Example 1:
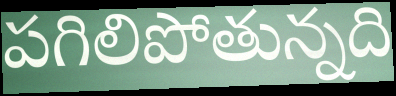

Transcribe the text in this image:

పగిలిపోతున్నది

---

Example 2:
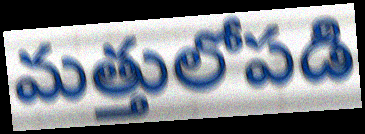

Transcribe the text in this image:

మత్తులోపడి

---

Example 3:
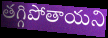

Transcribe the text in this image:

తగ్గిపోతాయని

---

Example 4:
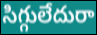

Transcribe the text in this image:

సిగ్గులేదురా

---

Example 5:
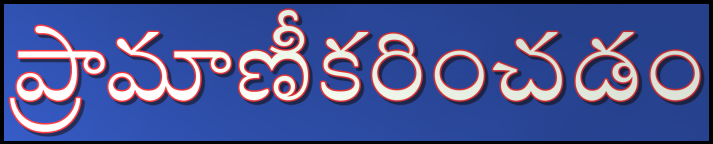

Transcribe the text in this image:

ప్రామాణీకరించడం